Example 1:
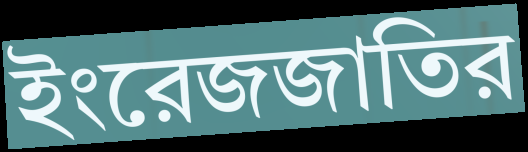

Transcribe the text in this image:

ইংরেজজাতির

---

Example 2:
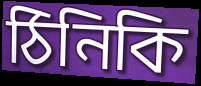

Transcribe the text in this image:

ঠিনিকি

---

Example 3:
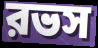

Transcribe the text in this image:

রভস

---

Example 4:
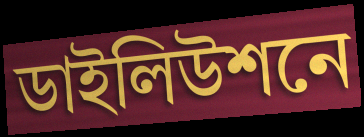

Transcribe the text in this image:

ডাইলিউশনে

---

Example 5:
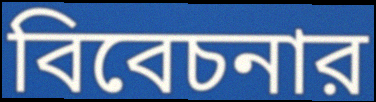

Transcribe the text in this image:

বিবেচনার